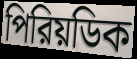
পিরিয়ডিক